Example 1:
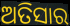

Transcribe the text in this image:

ଅତିସାର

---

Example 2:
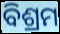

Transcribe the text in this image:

ବିଶ୍ରମ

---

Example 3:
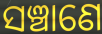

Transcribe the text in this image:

ସଞ୍ଚାଣେ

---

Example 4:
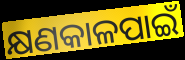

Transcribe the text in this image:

କ୍ଷଣକାଳପାଇଁ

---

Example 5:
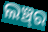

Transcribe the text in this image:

ଲଞ୍ଚ୍‍ର